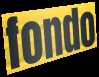
fondo